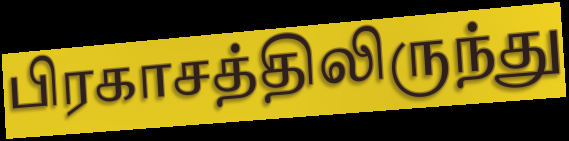
பிரகாசத்திலிருந்து